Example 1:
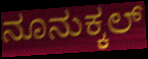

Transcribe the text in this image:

ನೂನುಕ್ಕಲ್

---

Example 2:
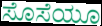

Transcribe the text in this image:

ಸೊಸೆಯೂ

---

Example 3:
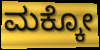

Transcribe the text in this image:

ಮಕ್ಕೋ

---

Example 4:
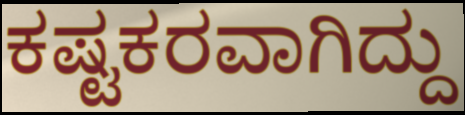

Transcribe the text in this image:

ಕಷ್ಟಕರವಾಗಿದ್ದು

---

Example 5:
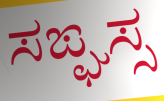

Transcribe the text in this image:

ಸಙ್ಘಸ್ಸ